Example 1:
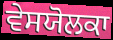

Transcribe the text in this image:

ਵੇਸਯੋਲਕਾ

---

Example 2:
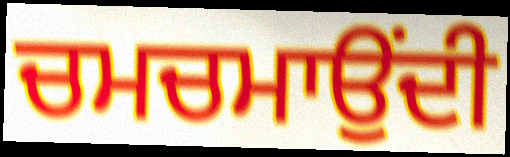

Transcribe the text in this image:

ਚਮਚਮਾਉਂਦੀ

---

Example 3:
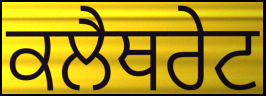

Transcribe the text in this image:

ਕਲੈਥਰੇਟ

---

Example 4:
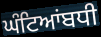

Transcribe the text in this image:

ਘੰਟਿਆਂਬਧੀ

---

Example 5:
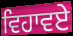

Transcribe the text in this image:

ਵਿਹਾਵਏ